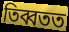
তিব্বতত